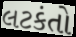
લટકંતો